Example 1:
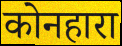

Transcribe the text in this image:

कोनहारा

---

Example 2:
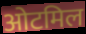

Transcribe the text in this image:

ओटमिल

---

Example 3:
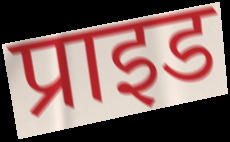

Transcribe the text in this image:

प्राइड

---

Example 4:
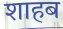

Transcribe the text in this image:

शाहब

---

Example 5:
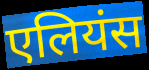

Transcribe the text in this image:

एलियंस